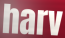
harv